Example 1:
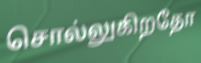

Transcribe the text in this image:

சொல்லுகிறதோ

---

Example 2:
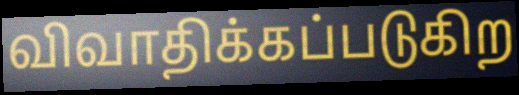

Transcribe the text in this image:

விவாதிக்கப்படுகிற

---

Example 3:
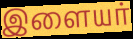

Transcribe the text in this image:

இளையர்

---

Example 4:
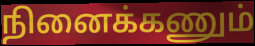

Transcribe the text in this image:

நினைக்கணும்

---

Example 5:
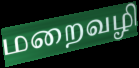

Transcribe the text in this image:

மறைவழி